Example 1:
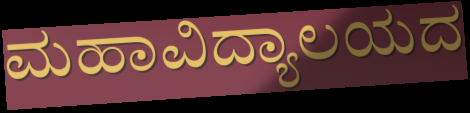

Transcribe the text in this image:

ಮಹಾವಿದ್ಯಾಲಯದ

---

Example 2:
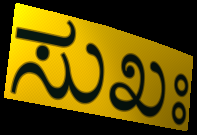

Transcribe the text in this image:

ಸುಖಃ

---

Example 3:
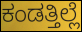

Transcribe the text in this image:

ಕಂಡತ್ತಿಲ್ಲೆ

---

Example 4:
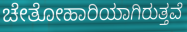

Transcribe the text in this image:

ಚೇತೋಹಾರಿಯಾಗಿರುತ್ತವೆ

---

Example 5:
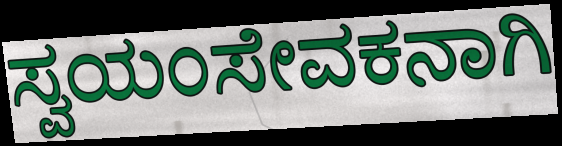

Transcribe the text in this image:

ಸ್ವಯಂಸೇವಕನಾಗಿ